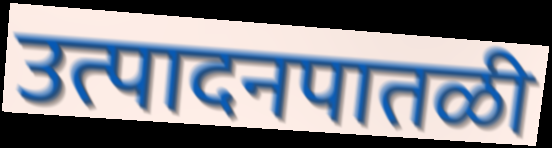
उत्पादनपातळी